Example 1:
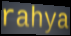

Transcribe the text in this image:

rahya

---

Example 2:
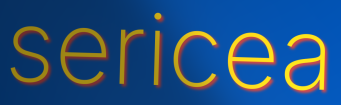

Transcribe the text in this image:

sericea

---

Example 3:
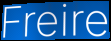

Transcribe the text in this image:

Freire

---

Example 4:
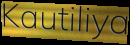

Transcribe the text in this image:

Kautiliya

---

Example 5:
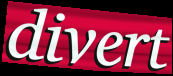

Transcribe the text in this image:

divert